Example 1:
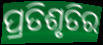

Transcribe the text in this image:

ପ୍ରତିଶୃତିର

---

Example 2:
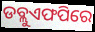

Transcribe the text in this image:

ଡବ୍ଲୁଏଫପିରେ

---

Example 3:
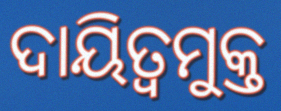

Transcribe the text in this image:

ଦାୟିତ୍ବମୁକ୍ତ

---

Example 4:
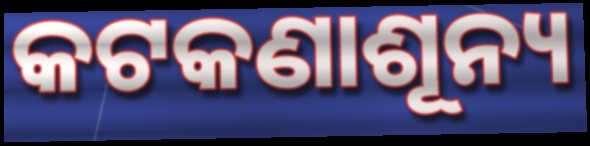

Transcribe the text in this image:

କଟକଣାଶୂନ୍ୟ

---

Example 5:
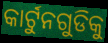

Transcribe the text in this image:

କାର୍ଟୁନଗୁଡିକୁ